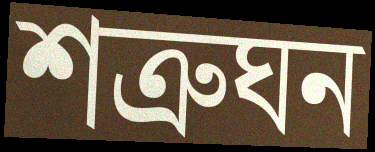
শত্ৰুঘন